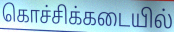
கொச்சிக்கடையில்